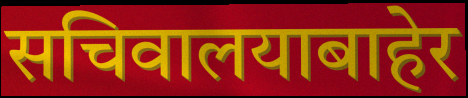
सचिवालयाबाहेर